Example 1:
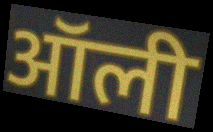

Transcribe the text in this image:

ऑली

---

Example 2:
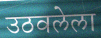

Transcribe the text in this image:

उठवलेला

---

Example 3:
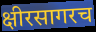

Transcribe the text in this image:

क्षीरसागरच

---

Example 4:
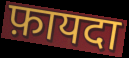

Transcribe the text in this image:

फ़ायदा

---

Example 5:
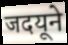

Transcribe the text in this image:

जदयूने